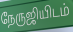
நேருஜியிடம்